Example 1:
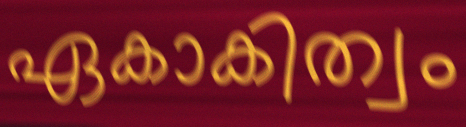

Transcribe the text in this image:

ഏകാകിത്വം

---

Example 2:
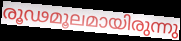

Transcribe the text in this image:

രൂഢമൂലമായിരുന്നു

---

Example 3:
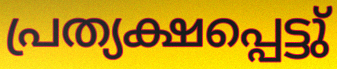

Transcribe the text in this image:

പ്രത്യക്ഷപ്പെട്ടു്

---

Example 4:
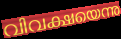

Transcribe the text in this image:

വിവക്ഷയെന്നു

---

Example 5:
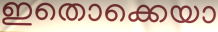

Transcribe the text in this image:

ഇതൊക്കെയാ